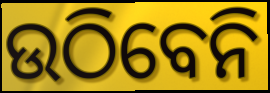
ଉଠିବେନି